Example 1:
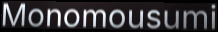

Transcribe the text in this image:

Monomousumi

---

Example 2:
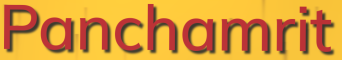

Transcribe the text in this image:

Panchamrit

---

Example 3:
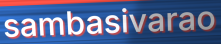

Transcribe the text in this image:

sambasivarao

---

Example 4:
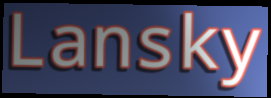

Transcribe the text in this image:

Lansky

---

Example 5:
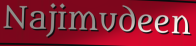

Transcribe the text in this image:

Najimudeen